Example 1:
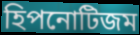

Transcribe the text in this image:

হিপনোটিজম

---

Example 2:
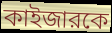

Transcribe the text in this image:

কাইজারকে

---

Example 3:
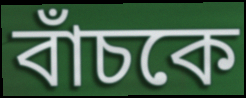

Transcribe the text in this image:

বাঁচকে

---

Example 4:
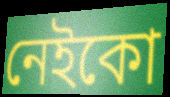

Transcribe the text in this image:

নেইকো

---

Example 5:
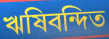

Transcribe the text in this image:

ঋষিবন্দিত